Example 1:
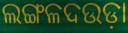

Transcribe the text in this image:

ଲଙ୍ଗଳଦଉଡ଼ା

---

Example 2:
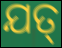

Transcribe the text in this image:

ଯତ୍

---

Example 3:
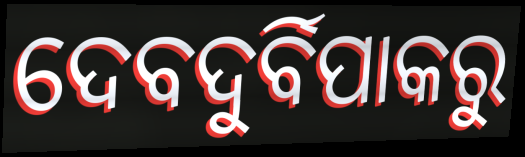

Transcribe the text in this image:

ଦେବଦୁର୍ବିପାକରୁ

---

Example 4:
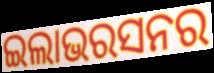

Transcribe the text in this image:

ଇଲାଭରସନର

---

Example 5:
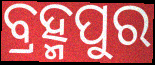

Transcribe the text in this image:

ବ୍ରହ୍ମପୁର